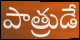
పాత్రుడే